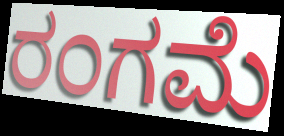
ರಂಗಮೆ